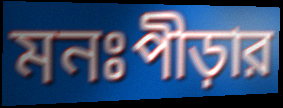
মনঃপীড়ার